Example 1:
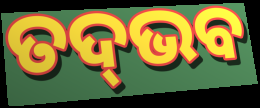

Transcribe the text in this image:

ତଦ୍‌ଭବ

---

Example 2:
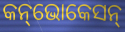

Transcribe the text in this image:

କନ୍‌ଭୋକେସନ୍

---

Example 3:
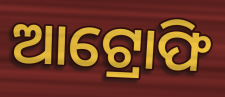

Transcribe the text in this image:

ଆଟ୍ରୋଫି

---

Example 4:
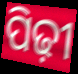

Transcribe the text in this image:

ପିଢ଼ୀ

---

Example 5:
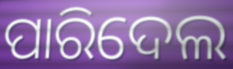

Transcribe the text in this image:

ପାରିଦେଲ